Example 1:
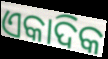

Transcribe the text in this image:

ଏକାଦିକ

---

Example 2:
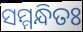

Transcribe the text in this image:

ସମ୍ମନ୍ଧିତଃ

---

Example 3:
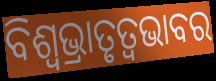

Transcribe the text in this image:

ବିଶ୍ଵଭ୍ରାତୃତ୍ୱଭାବର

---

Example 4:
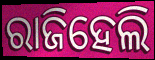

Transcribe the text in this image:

ରାଜିହେଲି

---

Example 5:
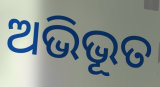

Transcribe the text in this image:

ଅଭିଭୂତ